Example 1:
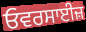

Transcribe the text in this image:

ਓਵਰਸਾਈਜ਼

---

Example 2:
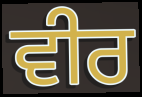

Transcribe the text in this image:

ਵੀਰ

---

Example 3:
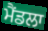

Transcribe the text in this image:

ਮੈਂਡਲਾ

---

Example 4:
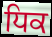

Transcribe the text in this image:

ਧਿਕ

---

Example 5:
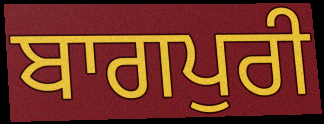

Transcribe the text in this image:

ਬਾਗਪੁਰੀ